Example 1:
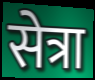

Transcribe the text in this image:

सेत्रा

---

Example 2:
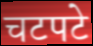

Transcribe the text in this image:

चटपटे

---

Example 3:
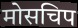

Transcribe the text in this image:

मोसचिप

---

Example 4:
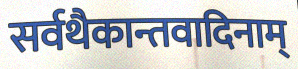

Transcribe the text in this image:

सर्वथैकान्तवादिनाम्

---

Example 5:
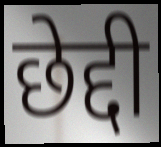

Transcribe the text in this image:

छेद्दी